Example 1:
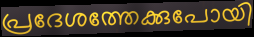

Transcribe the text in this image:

പ്രദേശത്തേക്കുപോയി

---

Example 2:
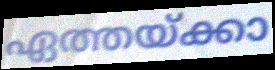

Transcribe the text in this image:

ഏത്തയ്ക്കാ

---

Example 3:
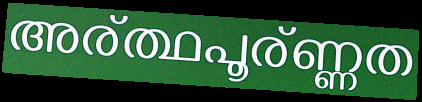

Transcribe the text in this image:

അര്ത്ഥപൂര്ണ്ണത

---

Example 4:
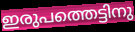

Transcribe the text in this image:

ഇരുപത്തെട്ടിനു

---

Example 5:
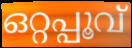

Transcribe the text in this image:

ഒറ്റപ്പൂവ്